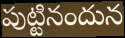
పుట్టినందున